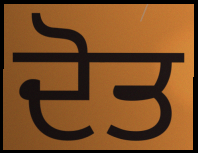
ਦੋਤ